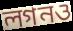
লগনও